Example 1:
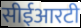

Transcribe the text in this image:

सीईआरटी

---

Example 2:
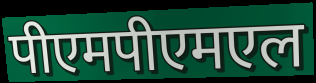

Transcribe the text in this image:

पीएमपीएमएल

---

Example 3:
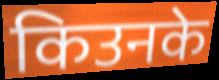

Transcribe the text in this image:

किउनके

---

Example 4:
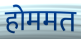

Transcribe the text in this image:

होममत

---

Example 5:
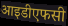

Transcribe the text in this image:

आइडीएफसी